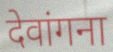
देवांगना